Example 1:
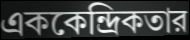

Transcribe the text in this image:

এককেন্দ্রিকতার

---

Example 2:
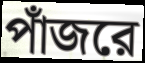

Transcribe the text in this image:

পাঁজরে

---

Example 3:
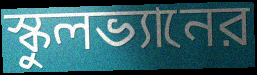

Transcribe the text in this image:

স্কুলভ্যানের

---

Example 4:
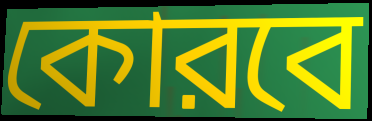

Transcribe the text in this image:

কোরবে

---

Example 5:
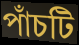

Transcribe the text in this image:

পাঁচটি